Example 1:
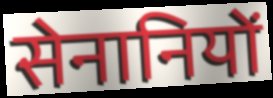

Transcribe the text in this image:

सेनानियों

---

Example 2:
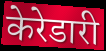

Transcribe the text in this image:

केरेडारी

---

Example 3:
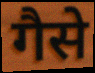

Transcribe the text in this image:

गैसे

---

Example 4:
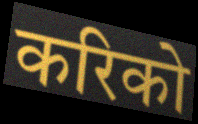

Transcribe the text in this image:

करिको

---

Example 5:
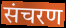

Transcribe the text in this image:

संचरण